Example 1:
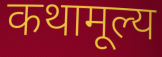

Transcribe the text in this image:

कथामूल्य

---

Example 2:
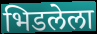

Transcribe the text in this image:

भिडलेला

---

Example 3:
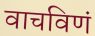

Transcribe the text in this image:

वाचविणं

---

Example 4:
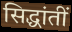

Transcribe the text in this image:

सिद्धांतीं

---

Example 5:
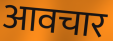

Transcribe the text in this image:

आवचार